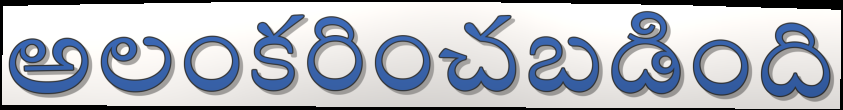
అలంకరించబడింది